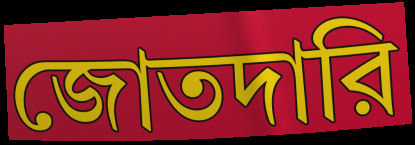
জোতদারি